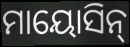
ମାୟୋସିନ୍